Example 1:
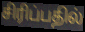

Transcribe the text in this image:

சிரிப்பதில்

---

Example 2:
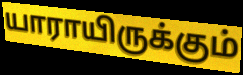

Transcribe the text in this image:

யாராயிருக்கும்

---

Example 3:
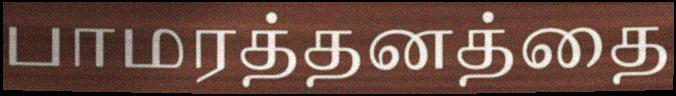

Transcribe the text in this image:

பாமரத்தனத்தை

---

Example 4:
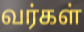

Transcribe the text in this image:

வர்கள்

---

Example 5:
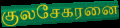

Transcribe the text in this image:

குலசேகரனை